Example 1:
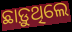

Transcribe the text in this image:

ଛାଡ଼ୁଥିଲେ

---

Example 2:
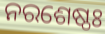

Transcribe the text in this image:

ନରଶେଷ୍ଠଃ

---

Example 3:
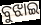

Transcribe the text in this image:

ବୁଝାଇ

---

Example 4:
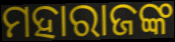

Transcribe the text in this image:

ମହାରାଜଙ୍କ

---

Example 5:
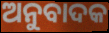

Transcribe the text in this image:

ଅନୁବାଦକ